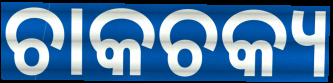
ଚାକଚକ୍ୟ